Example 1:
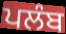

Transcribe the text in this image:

ਪਲੰਬ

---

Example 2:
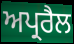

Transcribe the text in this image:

ਅਪ੍ਰਰੈਲ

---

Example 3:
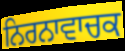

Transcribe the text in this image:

ਨਿਰਨਾਵਾਚਕ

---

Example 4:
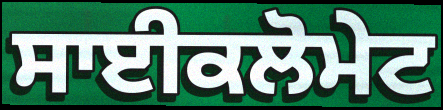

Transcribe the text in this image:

ਸਾਈਕਲੋਮੇਟ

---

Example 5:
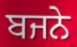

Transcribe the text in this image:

ਬਜਨੇ